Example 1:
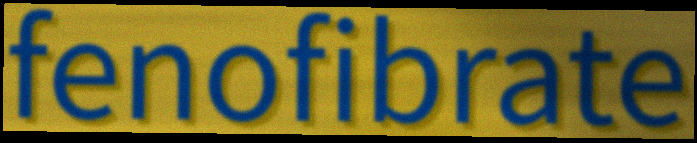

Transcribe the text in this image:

fenofibrate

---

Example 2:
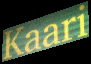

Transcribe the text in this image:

Kaari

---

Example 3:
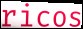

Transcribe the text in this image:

ricos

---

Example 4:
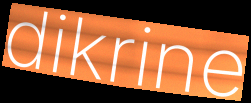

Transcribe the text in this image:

dikrine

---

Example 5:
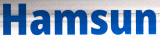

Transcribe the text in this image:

Hamsun